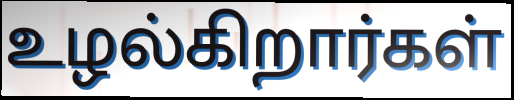
உழல்கிறார்கள்